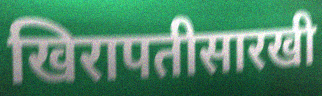
खिरापतीसारखी